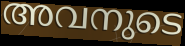
അവനുടെ